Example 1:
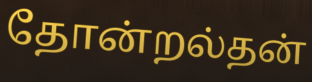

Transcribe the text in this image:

தோன்றல்தன்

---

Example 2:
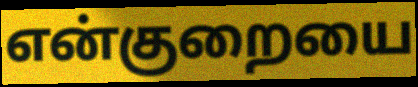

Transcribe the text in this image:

என்குறையை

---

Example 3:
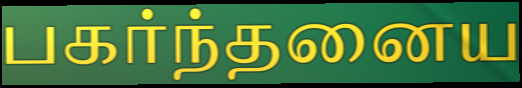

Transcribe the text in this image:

பகர்ந்தனைய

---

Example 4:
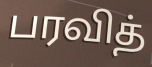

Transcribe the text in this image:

பரவித்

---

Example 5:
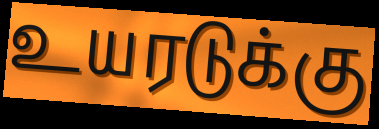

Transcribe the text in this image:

உயரடுக்கு